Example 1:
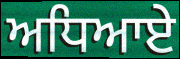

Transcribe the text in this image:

ਅਧਿਆਏ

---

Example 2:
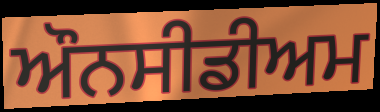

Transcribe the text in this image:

ਔਨਸੀਡੀਅਮ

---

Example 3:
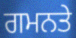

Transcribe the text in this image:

ਗਮਨਤੇ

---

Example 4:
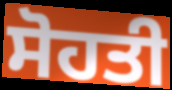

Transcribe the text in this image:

ਸੋਹਤੀ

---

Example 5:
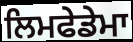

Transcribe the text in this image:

ਲਿਮਫੇਡੇਮਾ